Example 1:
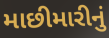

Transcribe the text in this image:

માછીમારીનું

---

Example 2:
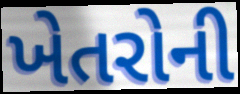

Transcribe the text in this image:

ખેતરોની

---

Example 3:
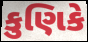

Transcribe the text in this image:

કુણિકે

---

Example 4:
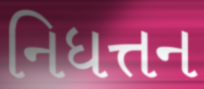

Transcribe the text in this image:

નિધત્તન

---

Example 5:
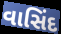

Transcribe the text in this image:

વાસિંદ